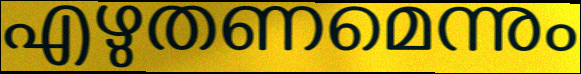
എഴുതണമെന്നും